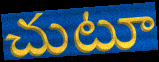
చుటూ